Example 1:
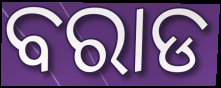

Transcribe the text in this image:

ବରାଡ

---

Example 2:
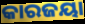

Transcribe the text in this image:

କାରଜୟା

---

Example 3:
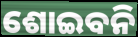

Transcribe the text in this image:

ଶୋଇବନି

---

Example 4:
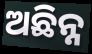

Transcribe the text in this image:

ଅଛିନ୍ନ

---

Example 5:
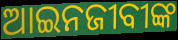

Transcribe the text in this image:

ଆଇନଜୀବୀଙ୍କ